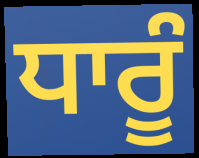
ਧਾਰੂੰ